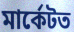
মাৰ্কেটত